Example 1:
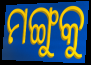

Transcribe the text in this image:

ମଙ୍ଗୁକୁ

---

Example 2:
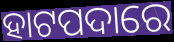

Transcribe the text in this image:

ହାଟପଦାରେ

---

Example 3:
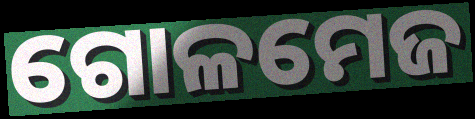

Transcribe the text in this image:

ଗୋଳମେଜ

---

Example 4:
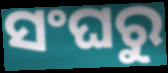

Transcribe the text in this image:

ସଂଘରୁ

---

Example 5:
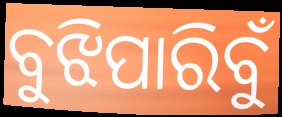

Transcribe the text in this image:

ବୁଝିପାରିବୁଁ